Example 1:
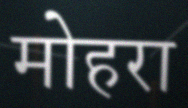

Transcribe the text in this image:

मोहरा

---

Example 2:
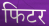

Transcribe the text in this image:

फिटर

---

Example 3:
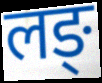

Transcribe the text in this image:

लङ्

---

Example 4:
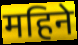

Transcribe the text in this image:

महिने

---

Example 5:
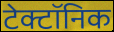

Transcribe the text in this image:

टेक्टॉनिक